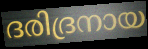
ദരിദ്രനായ